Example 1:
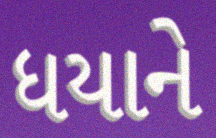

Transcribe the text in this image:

ધયાને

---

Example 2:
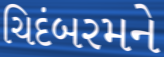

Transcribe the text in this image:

ચિદંબરમને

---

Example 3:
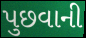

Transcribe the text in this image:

પુછવાની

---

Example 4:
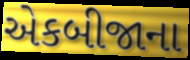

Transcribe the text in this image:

એકબીજાના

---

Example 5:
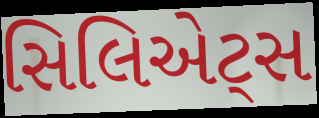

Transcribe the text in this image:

સિલિએટ્સ